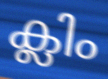
ക്ലിം